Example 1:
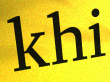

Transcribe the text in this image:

khi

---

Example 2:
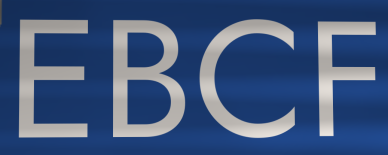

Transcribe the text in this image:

EBCF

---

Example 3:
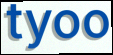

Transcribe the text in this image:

tyoo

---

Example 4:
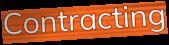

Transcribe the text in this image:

Contracting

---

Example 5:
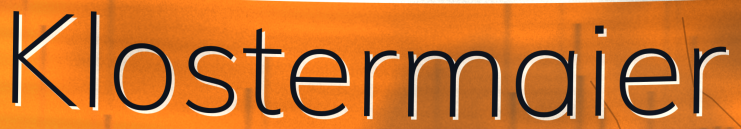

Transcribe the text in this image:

Klostermaier